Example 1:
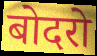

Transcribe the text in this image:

बोदरो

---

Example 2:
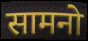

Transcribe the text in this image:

सामनो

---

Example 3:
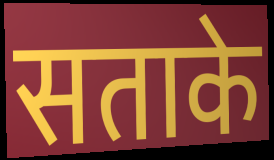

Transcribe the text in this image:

सताके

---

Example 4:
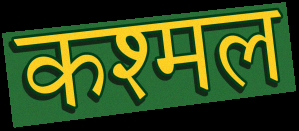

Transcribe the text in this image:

कश्मल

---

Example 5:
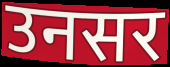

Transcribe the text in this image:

उनसर